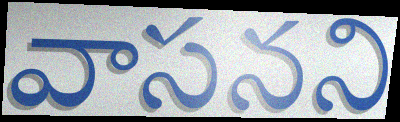
వాసనని